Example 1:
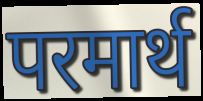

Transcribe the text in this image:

परमार्थ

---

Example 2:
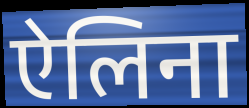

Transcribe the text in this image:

ऐलिना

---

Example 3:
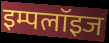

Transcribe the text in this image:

इम्पलॉइज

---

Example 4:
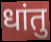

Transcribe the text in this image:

धांतु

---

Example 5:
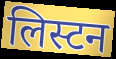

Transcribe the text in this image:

लिस्टन